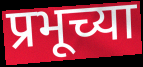
प्रभूच्या